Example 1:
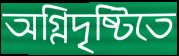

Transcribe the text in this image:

অগ্নিদৃষ্টিতে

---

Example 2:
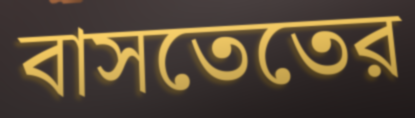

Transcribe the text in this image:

বাসতেতের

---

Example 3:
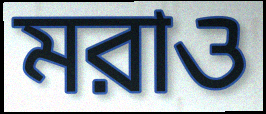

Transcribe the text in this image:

মরাও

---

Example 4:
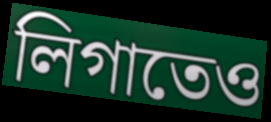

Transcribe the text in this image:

লিগাতেও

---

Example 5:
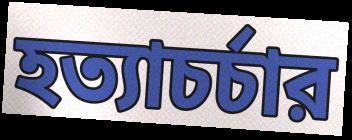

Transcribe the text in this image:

হত্যাচর্চার